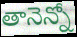
తానెన్నో